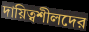
দায়িত্বশীলদের